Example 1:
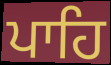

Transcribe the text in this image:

ਪਾਹਿ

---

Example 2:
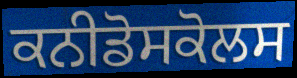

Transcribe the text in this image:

ਕਨੀਡੋਸਕੋਲਸ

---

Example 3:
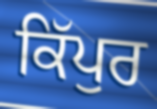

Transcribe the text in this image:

ਕਿੱਪੁਰ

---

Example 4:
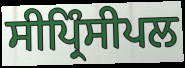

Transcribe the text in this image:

ਸੀਪ੍ਰਿੰਸੀਪਲ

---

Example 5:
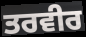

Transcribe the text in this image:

ਤਰਵੀਰ